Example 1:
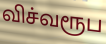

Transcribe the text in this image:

விச்வரூப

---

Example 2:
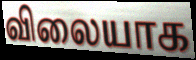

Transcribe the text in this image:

விலையாக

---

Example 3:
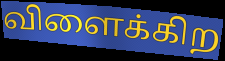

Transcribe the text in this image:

விளைக்கிற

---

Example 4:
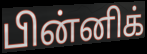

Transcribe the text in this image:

பின்னிக்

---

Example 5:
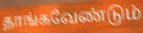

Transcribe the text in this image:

தாங்கவேண்டும்